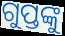
ଗୁପ୍ତଙ୍କୁ